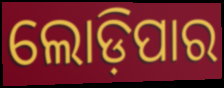
ଲୋଡ଼ିପାର